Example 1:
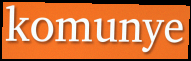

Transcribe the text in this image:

komunye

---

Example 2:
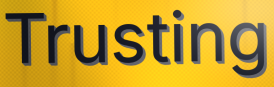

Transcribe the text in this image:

Trusting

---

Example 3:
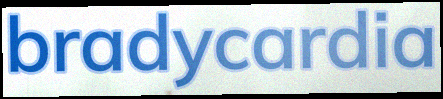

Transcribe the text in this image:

bradycardia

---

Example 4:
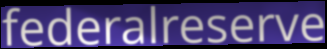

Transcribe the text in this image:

federalreserve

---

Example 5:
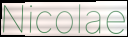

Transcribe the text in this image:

Nicolae